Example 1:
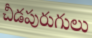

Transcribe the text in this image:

చీడపురుగులు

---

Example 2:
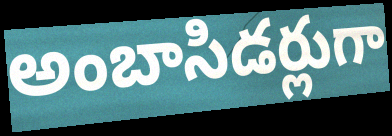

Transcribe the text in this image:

అంబాసిడర్లుగా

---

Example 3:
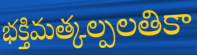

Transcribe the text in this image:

భక్తిమత్కల్పలతికా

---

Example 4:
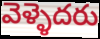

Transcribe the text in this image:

వెళ్ళెదరు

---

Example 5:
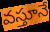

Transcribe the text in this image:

వస్తూనే